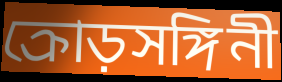
ক্রোড়সঙ্গিনী